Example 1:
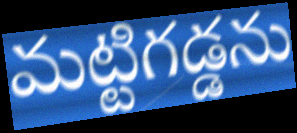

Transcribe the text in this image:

మట్టిగడ్డను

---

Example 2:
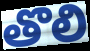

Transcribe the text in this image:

తొలి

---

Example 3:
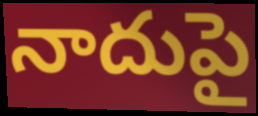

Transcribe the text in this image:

నాదుపై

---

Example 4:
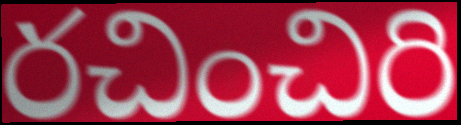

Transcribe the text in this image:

రచించిరి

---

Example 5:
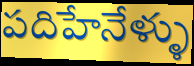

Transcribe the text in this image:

పదిహేనేళ్ళు